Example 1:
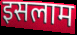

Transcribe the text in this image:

इसलाम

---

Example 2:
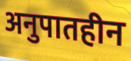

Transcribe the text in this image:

अनुपातहीन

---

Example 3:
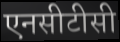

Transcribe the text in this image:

एनसीटीसी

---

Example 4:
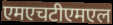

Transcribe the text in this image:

एमएचटीएमएल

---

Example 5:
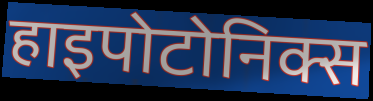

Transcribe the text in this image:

हाइपोटोनिक्स